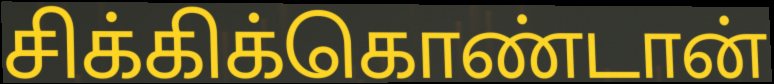
சிக்கிக்கொண்டான்